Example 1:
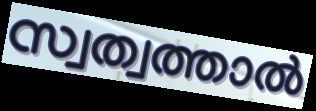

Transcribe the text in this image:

സ്വത്വത്താൽ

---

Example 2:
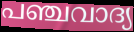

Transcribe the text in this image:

പഞ്ചവാദ്യ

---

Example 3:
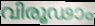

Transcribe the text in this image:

വിരൂഢാം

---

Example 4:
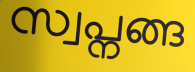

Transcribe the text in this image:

സ്വപ്നങ്ങ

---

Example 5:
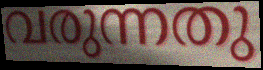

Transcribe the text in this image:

വരുന്നതു